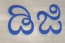
ಡಿಜಿ